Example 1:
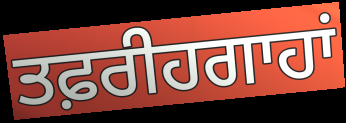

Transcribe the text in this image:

ਤਫ਼ਰੀਹਗਾਹਾਂ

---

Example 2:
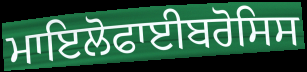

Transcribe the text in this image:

ਮਾਇਲੋਫਾਈਬਰੋਸਿਸ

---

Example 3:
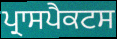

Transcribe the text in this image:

ਪ੍ਰਾਸਪੈਕਟਸ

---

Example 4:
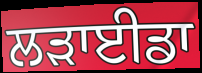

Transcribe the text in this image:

ਲੜਾਈਡਾ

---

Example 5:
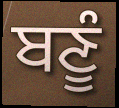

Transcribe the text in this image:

ਬਣੂੰ